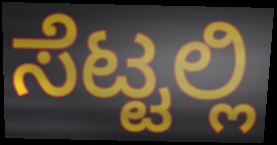
ಸೆಟ್ಟಲ್ಲಿ